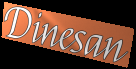
Dinesan